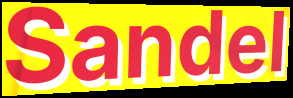
Sandel